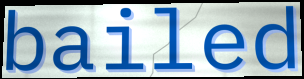
bailed